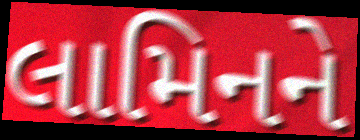
લામિનને